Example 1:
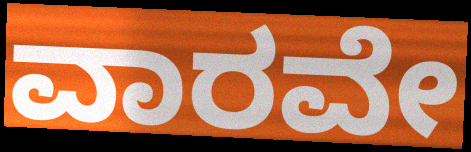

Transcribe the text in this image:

ವಾರವೇ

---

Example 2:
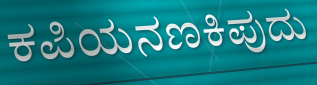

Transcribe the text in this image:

ಕಪಿಯನಣಕಿಪುದು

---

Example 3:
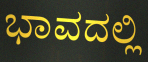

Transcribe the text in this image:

ಭಾವದಲ್ಲಿ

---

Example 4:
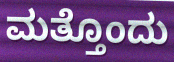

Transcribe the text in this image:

ಮತ್ತೊಂದು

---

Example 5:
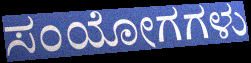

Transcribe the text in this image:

ಸಂಯೋಗಗಳು